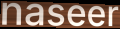
naseer